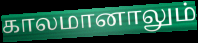
காலமானாலும்